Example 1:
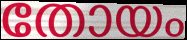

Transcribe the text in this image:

തോയം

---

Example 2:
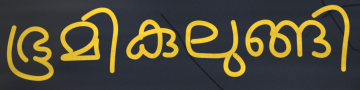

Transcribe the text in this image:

ഭൂമികുലുങ്ങി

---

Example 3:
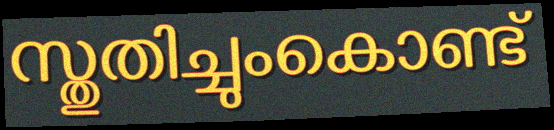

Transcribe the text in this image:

സ്തുതിച്ചുംകൊണ്ട്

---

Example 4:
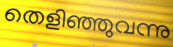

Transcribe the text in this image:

തെളിഞ്ഞുവന്നു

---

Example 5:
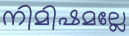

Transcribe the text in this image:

നിമിഷമല്ലേ